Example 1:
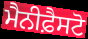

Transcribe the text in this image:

ਮੈਨੀਫ਼ੈਸਟੋ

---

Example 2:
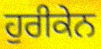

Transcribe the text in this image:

ਹੁਰੀਕੇਨ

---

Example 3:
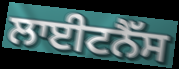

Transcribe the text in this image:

ਲਾਈਟਨੈੱਸ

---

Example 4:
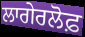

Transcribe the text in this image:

ਲਾਗੇਰਲੋਫ਼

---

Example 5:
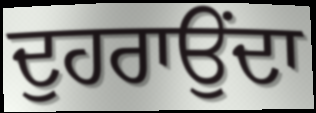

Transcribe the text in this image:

ਦੁਹਰਾਉਂਦਾ